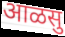
आळसु